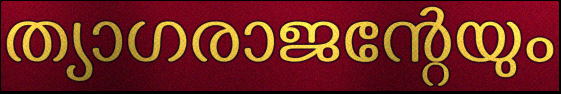
ത്യാഗരാജന്റേയും